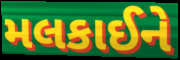
મલકાઈને